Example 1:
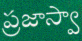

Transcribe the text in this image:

ప్రజాస్వా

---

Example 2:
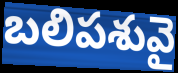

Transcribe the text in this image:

బలిపశువై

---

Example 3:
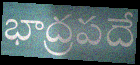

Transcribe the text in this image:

భాద్రపదే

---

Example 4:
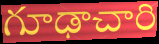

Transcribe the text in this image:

గూఢాచారి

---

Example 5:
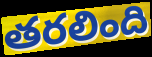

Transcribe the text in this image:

తరలింది